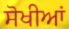
ਸੋਖੀਆਂ